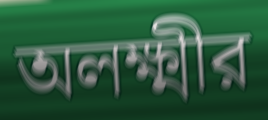
অলক্ষ্মীর